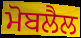
ਮੋਬਲੈਲ